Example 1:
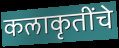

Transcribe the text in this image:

कलाकृतींचे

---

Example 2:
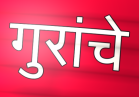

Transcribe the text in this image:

गुरांचे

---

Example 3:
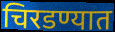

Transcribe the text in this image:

चिरडण्यात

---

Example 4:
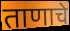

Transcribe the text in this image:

ताणाचे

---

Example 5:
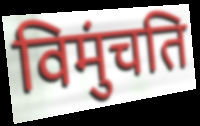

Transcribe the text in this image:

विमुंचति